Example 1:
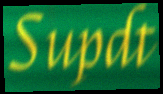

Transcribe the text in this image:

Supdt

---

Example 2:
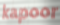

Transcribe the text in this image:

kapoor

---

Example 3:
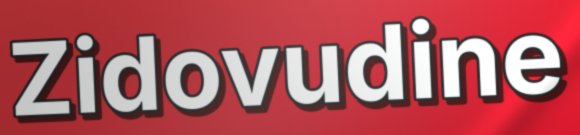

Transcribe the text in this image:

Zidovudine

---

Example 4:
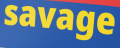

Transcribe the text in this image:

savage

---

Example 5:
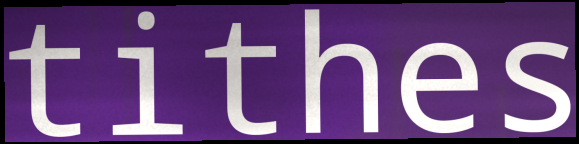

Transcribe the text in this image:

tithes